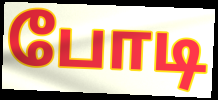
போடி